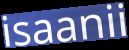
isaanii